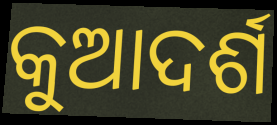
କୁଆଦର୍ଶ